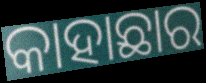
କାହାଛାର